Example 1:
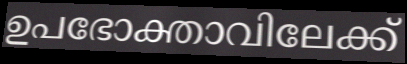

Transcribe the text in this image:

ഉപഭോക്താവിലേക്ക്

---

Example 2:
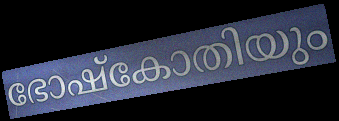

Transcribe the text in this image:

ഭോഷ്കോതിയും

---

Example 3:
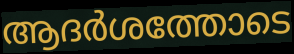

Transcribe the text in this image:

ആദർശത്തോടെ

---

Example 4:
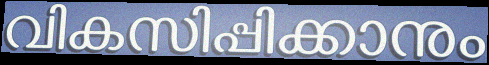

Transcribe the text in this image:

വികസിപ്പിക്കാനും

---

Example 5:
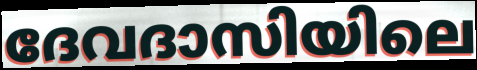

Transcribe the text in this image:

ദേവദാസിയിലെ